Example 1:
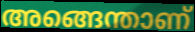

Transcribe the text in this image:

അങ്ങെന്താണ്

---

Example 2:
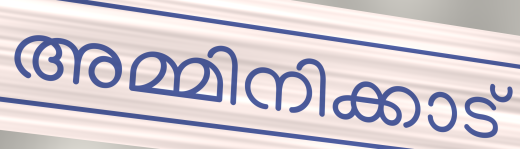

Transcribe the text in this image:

അമ്മിനിക്കാട്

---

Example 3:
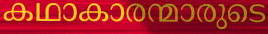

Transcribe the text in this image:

കഥാകാരന്മാരുടെ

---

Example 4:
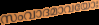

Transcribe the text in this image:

സംവാദമാവയോഃ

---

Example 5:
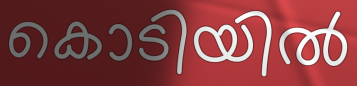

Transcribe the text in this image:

കൊടിയിൽ